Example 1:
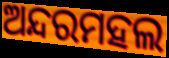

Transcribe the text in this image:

ଅନ୍ଦରମହଲ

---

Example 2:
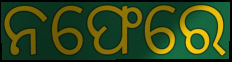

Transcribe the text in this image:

ନଫେରେ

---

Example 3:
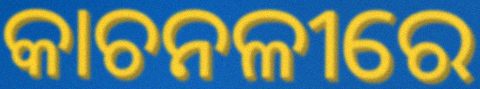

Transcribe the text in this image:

କାଚନଳୀରେ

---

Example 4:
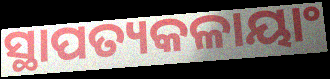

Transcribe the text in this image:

ସ୍ଥାପତ୍ୟକଳାୟାଂ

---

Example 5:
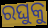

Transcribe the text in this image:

ରଘୁକୁ